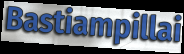
Bastiampillai